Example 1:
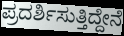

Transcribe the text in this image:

ಪ್ರದರ್ಶಿಸುತ್ತಿದ್ದೇನೆ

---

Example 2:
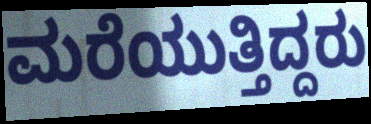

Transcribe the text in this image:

ಮರೆಯುತ್ತಿದ್ದರು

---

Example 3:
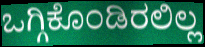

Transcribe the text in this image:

ಒಗ್ಗಿಕೊಂಡಿರಲಿಲ್ಲ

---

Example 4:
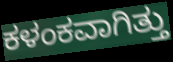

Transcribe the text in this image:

ಕಳಂಕವಾಗಿತ್ತು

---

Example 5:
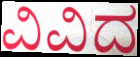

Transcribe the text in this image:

ವಿವಿದ